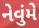
નેવુંમે